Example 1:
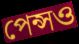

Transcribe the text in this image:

পেন্সও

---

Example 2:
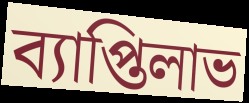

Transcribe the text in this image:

ব্যাপ্তিলাভ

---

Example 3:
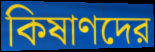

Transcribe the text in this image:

কিষাণদের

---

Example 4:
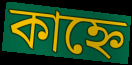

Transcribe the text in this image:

কাহ্নে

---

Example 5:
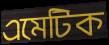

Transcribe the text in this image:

এমেটিক